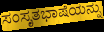
ಸಂಸ್ಕೃತಭಾಷೆಯನ್ನು